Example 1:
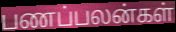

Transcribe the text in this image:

பணப்பலன்கள்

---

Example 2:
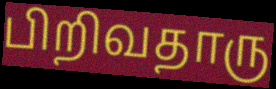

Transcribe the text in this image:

பிறிவதாரு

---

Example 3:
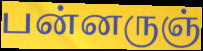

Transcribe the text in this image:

பன்னருஞ்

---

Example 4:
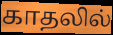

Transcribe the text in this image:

காதலில்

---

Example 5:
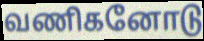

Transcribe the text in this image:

வணிகனோடு